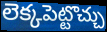
లెక్కపెట్టొచ్చు